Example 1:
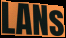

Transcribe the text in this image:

LANs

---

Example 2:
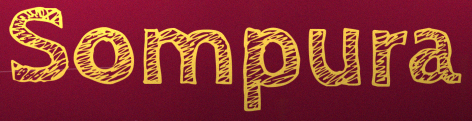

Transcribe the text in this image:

Sompura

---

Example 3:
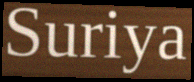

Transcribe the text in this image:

Suriya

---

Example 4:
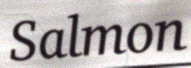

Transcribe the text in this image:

Salmon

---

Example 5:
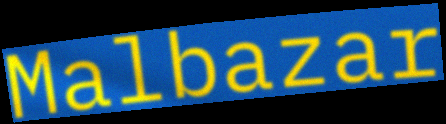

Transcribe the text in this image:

Malbazar